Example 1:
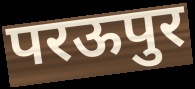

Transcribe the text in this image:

परऊपुर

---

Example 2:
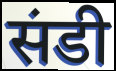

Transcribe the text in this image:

संडी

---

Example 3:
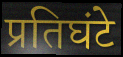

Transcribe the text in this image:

प्रतिघंटे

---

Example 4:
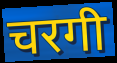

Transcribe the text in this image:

चरगी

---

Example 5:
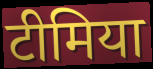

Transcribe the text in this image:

टीमिया